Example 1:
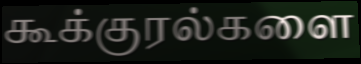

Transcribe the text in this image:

கூக்குரல்களை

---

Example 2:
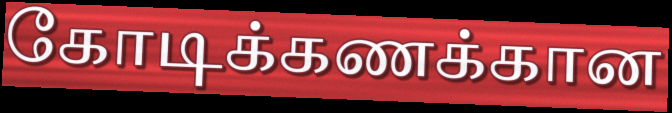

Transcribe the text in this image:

கோடிக்கணக்கான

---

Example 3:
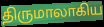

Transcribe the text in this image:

திருமாலாகிய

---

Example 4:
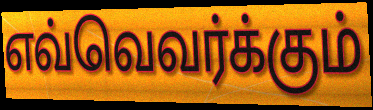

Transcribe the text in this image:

எவ்வெவர்க்கும்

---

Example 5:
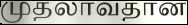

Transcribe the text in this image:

முதலாவதான